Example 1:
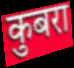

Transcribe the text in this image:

कुबरा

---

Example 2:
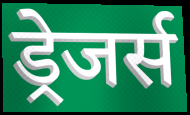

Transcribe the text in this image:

ड्रेजर्स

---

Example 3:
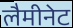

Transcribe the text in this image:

लैमीनेट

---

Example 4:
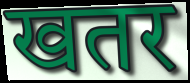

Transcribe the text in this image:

खतर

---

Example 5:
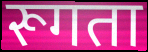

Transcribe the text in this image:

रूगता